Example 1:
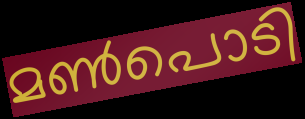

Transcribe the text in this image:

മൺപൊടി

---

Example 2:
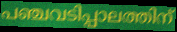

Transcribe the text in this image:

പഞ്ചവടിപ്പാലത്തിന്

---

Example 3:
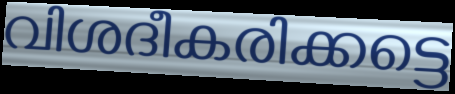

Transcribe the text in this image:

വിശദീകരിക്കട്ടെ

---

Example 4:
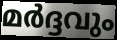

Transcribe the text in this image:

മർദ്ദവും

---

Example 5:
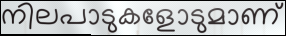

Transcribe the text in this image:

നിലപാടുകളോടുമാണ്